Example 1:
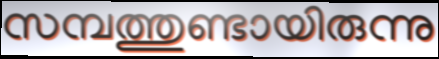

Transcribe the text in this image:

സമ്പത്തുണ്ടായിരുന്നു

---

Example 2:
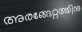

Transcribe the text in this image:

അരങ്ങേറ്റത്തിനു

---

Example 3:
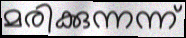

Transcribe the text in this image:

മരിക്കുന്നന്ന്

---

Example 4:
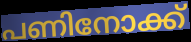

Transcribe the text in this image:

പണിനോക്ക്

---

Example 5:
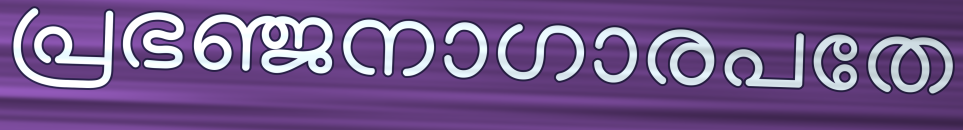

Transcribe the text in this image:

പ്രഭഞ്ജനാഗാരപതേ